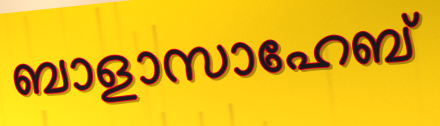
ബാളാസാഹേബ്